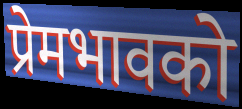
प्रेमभावको